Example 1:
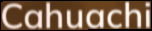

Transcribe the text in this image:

Cahuachi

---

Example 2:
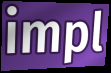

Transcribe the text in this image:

impl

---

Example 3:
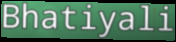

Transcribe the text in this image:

Bhatiyali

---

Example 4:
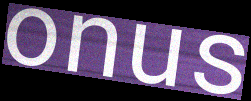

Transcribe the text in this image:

onus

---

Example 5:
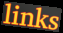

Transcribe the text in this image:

links